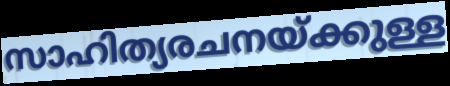
സാഹിത്യരചനയ്ക്കുള്ള